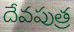
దేవపుత్ర